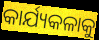
କାର୍ଯ୍ୟକଳାକୁ